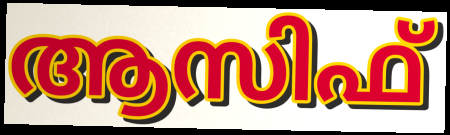
ആസിഫ്